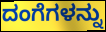
ದಂಗೆಗಳನ್ನು